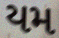
યમ